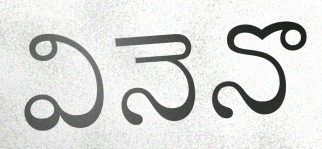
వినెనొ